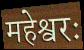
महेश्वरः